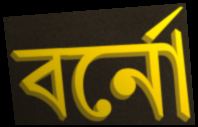
বর্নো